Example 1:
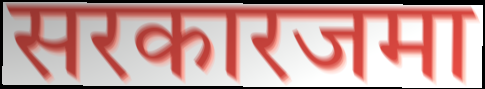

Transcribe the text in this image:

सरकारजमा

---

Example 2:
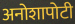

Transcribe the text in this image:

अनोशापोटी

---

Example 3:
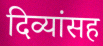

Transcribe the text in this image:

दिव्यांसह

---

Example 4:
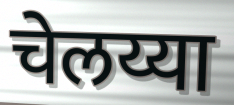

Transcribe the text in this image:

चेलय्या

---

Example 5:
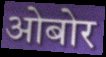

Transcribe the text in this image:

ओबोर